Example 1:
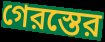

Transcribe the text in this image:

গেরস্তের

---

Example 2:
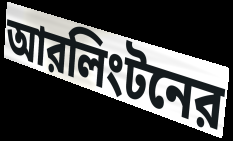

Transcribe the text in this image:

আরলিংটনের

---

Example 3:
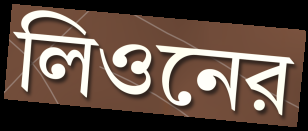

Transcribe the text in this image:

লিওনের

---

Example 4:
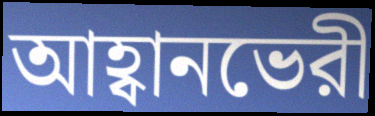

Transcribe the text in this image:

আহ্বানভেরী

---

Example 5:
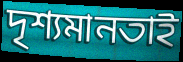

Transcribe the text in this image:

দৃশ্যমানতাই